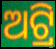
ଅଟ୍ରି